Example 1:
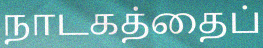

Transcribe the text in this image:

நாடகத்தைப்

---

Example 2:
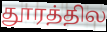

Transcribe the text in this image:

தூரத்தில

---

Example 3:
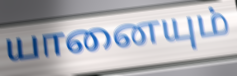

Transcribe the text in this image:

யானையும்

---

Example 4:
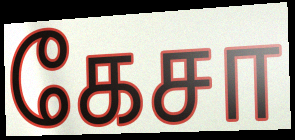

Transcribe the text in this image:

கேசா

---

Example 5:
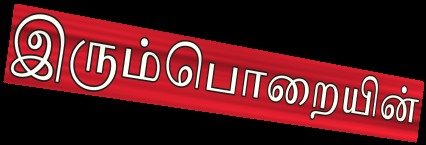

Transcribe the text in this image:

இரும்பொறையின்